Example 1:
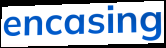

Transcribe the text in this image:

encasing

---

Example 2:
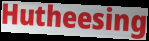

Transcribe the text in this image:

Hutheesing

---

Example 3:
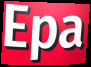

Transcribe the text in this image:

Epa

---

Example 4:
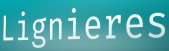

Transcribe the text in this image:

Lignieres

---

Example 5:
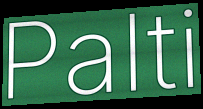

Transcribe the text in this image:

Palti